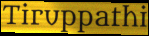
Tiruppathi